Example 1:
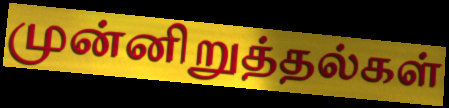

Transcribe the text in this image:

முன்னிறுத்தல்கள்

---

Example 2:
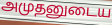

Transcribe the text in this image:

அமுதனுடைய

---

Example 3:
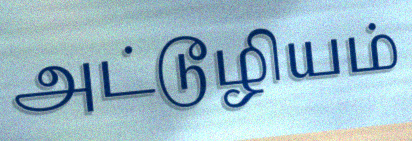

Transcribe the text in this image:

அட்டூழியம்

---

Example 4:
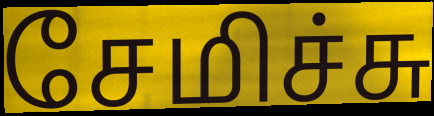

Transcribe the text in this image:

சேமிச்சு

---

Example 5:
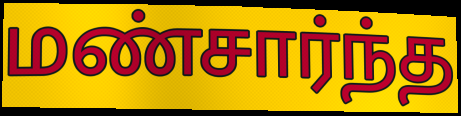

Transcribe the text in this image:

மண்சார்ந்த